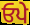
ਓਪੇ